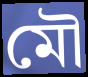
মৌ